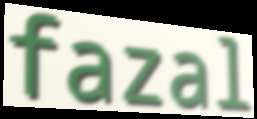
fazal